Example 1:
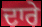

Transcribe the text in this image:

ਦਾਰੇ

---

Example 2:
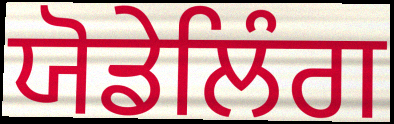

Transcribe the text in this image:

ਯੋਡੇਲਿੰਗ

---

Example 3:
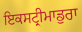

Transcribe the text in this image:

ਇਕਸਟ੍ਰੀਮਾਡੁਰਾ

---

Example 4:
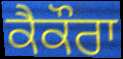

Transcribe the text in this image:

ਕੈਕੌਰਾ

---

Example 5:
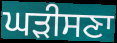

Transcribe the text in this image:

ਘੜੀਸਣਾ